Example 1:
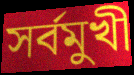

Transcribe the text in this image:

সর্বমুখী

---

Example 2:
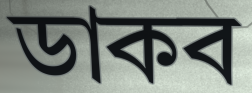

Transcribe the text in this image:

ডাকব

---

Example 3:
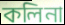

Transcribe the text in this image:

কলিনা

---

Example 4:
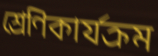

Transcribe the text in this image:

শ্রেণিকার্যক্রম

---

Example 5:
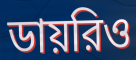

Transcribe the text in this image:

ডায়রিও